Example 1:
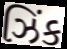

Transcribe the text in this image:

ઝિંક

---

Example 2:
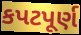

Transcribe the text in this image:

કપટપૂર્ણ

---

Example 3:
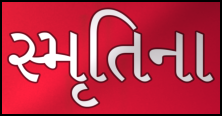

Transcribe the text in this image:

સ્મૃતિના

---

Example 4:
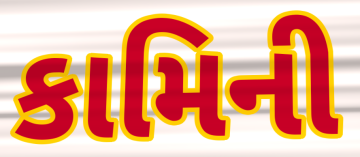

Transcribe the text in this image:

કામિની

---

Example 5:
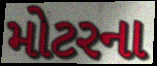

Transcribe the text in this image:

મોટરના